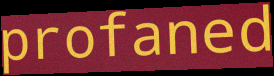
profaned